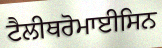
ਟੈਲੀਥਰੋਮਾਈਸਿਨ